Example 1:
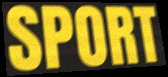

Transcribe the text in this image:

SPORT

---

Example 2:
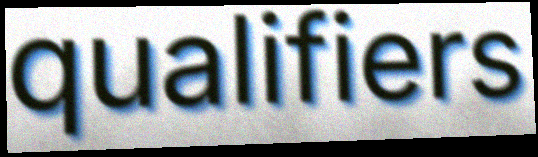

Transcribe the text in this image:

qualifiers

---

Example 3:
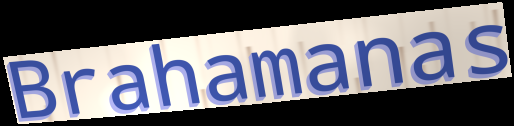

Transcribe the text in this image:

Brahamanas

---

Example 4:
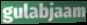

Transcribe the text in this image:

gulabjaam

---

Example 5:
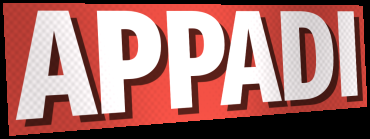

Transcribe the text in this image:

APPADI